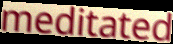
meditated